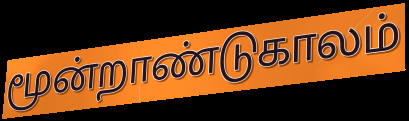
மூன்றாண்டுகாலம்